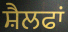
ਸ਼ੈਲਫਾਂ